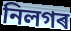
নিলগৰ